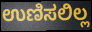
ಉಣಿಸಲಿಲ್ಲ